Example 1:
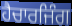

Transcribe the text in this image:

ਹੈਚਾਰਜਿੰਗ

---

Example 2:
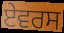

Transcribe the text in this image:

ਏਵਰਸ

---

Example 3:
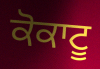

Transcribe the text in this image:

ਕੋਕਾਟੂ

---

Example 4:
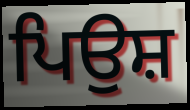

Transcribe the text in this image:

ਪਿਉਸ਼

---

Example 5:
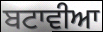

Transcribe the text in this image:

ਬਟਾਵੀਆ